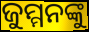
ଜୁମ୍ମନଙ୍କୁ